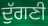
ਦੁੱਗਣੀ